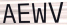
AEWV